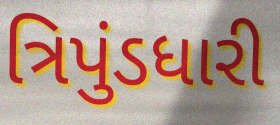
ત્રિપુંડધારી